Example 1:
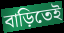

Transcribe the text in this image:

বাড়িতেই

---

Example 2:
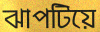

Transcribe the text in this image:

ঝাপটিয়ে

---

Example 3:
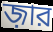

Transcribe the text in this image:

জ়ার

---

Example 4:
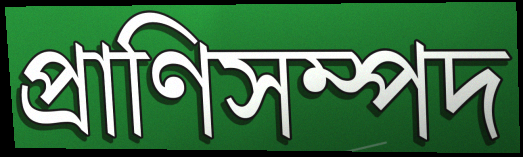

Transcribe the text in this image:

প্রাণিসম্পদ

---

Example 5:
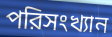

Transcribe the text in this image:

পরিসংখ্যান